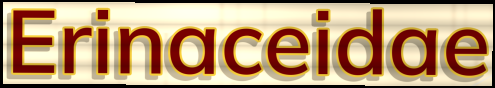
Erinaceidae